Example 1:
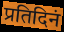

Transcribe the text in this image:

प्रतिदिनं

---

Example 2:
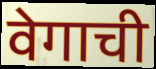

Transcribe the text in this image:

वेगाची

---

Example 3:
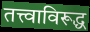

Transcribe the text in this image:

तत्त्वाविरूद्ध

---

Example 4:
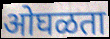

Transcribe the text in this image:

ओघळता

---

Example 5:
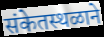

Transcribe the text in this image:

संकेतस्थळाने